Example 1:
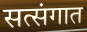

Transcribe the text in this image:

सत्संगात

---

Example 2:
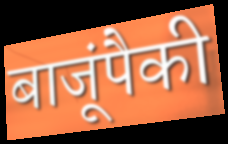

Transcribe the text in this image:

बाजूंपैकी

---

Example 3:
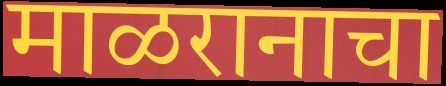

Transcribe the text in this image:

माळरानाचा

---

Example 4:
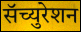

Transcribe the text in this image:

सॅच्युरेशन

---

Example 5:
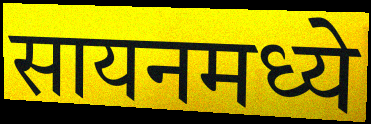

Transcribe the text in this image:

सायनमध्ये